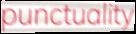
punctuality